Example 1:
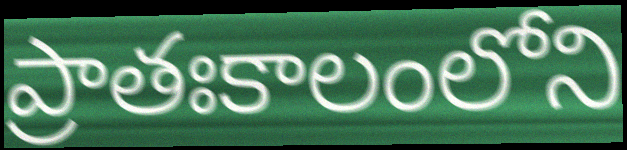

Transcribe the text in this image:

ప్రాతఃకాలంలోని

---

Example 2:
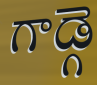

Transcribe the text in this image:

గాడ్గె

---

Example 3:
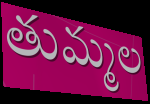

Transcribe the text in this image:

తుమ్మల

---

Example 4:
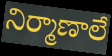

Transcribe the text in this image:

నిర్మాణాలే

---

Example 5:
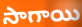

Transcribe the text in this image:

సాగాయి